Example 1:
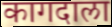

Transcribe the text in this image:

कागदाला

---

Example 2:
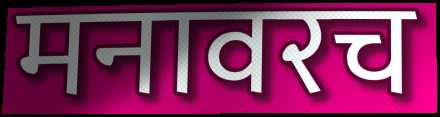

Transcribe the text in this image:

मनावरच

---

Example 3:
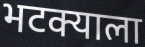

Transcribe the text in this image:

भटक्याला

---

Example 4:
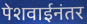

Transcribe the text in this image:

पेशवाईनंतर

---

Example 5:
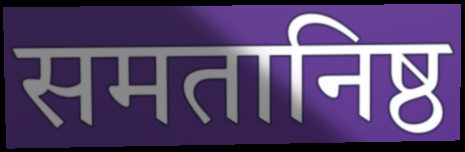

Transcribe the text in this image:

समतानिष्ठ